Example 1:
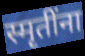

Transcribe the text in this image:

स्मृतींना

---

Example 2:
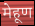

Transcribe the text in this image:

मेहूण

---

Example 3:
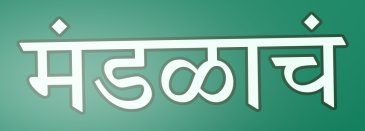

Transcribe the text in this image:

मंडळाचं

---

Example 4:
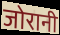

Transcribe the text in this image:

जोरानी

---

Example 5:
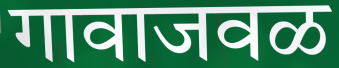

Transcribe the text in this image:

गावाजवळ